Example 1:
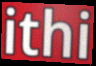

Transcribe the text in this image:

ithi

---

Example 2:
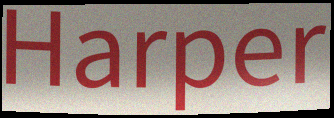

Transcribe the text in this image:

Harper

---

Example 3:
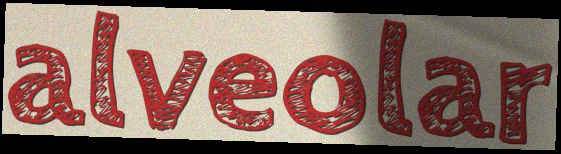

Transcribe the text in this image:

alveolar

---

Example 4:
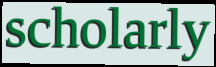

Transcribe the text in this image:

scholarly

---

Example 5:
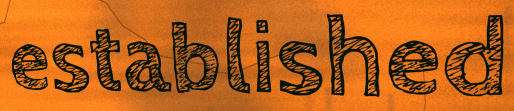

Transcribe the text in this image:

established